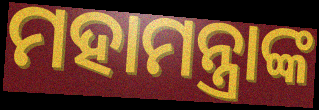
ମହାମନ୍ତ୍ରାଙ୍କ